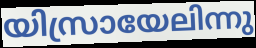
യിസ്രായേലിന്നു